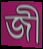
জী